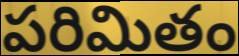
పరిమితం